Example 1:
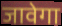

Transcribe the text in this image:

जावेगा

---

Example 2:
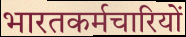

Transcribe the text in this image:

भारतकर्मचारियों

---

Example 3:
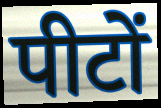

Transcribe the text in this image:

पीटों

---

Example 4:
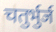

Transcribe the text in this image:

चतुर्भुर्ज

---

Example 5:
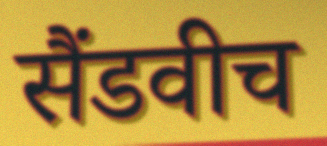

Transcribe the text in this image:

सैंडवीच